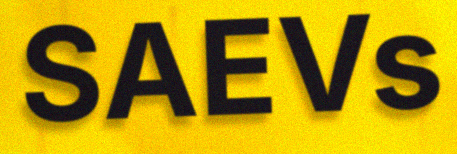
SAEVs